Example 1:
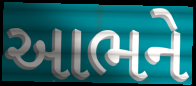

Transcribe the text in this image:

આભને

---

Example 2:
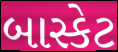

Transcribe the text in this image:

બાસ્કેટ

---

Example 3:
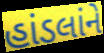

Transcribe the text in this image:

હાંડલાંને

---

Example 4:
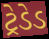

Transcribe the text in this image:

ટ્રેડેડ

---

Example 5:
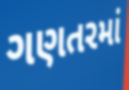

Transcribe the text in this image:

ગણતરમાં